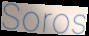
Soros